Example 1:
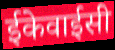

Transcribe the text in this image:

ईकेवाईसी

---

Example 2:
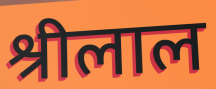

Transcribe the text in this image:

श्रीलाल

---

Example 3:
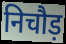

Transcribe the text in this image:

निचौड़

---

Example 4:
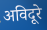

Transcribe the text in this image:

अविदूरे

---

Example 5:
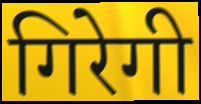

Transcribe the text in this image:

गिरेगी